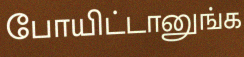
போயிட்டானுங்க